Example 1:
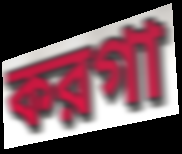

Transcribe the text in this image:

করগা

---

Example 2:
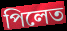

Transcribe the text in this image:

পিলেত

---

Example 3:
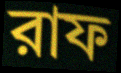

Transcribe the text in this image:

রাফ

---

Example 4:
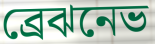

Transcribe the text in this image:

ব্রেঝনেভ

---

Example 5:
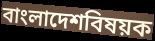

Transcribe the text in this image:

বাংলাদেশবিষয়ক